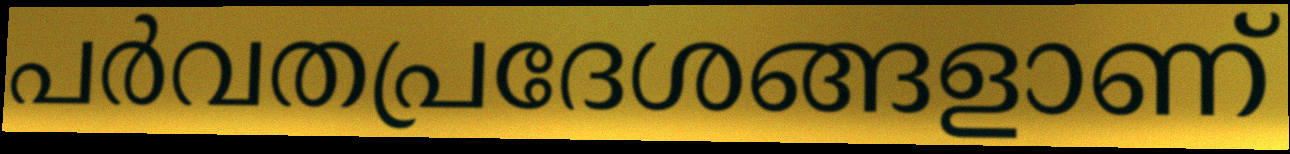
പർവതപ്രദേശങ്ങളാണ്